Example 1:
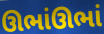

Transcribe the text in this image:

ઊભાંઊભાં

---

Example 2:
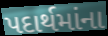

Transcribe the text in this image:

પદાર્થમાંના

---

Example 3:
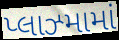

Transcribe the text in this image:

પ્લાઝ્મામાં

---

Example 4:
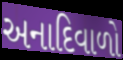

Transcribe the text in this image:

અનાદિવાળો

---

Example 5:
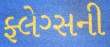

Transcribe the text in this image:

ફ્લેગ્સની